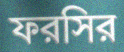
ফরসির